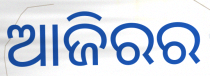
ଆଜିରର